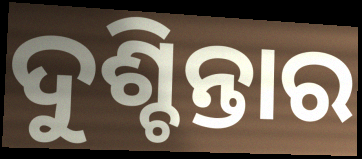
ଦୁଶ୍ଚିନ୍ତାର